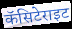
कॅसिटेराइट